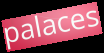
palaces